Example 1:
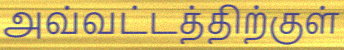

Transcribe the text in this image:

அவ்வட்டத்திற்குள்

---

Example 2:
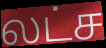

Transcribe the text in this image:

லட்ச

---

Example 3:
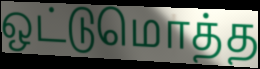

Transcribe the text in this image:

ஒட்டுமொத்த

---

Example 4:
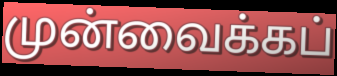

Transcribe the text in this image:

முன்வைக்கப்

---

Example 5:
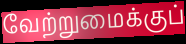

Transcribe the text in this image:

வேற்றுமைக்குப்